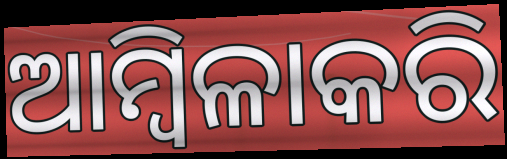
ଆମ୍ବିଳାକରି